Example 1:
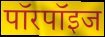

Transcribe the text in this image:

पॉरपॉइज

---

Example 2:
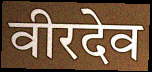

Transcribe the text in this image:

वीरदेव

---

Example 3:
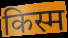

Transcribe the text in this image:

किस्म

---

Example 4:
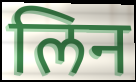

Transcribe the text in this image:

लिन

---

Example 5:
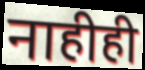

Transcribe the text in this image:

नाहीही